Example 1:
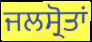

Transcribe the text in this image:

ਜਲਸ੍ਰੋਤਾਂ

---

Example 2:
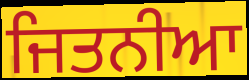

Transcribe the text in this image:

ਜਿਤਨੀਆ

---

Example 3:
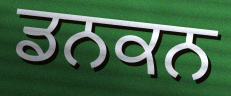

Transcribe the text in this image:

ਡਨਕਨ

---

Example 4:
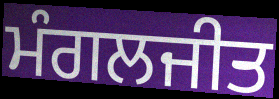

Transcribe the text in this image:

ਮੰਗਲਜੀਤ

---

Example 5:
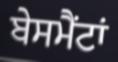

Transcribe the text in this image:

ਬੇਸਮੈਂਟਾਂ